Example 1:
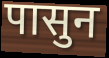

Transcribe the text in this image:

पासुन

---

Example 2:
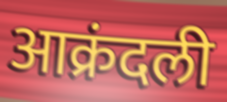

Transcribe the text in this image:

आक्रंदली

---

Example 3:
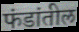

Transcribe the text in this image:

फंडांतील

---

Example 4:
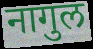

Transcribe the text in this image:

नागुल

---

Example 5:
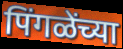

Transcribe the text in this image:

पिंगळेंच्या